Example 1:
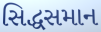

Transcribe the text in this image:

સિદ્ધસમાન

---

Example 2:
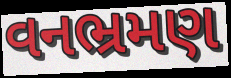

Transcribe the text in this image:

વનભ્રમણ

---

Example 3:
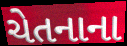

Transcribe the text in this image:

ચેતનાના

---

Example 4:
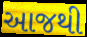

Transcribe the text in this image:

આજથી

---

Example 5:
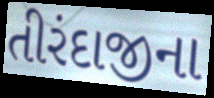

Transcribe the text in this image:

તીરંદાજીના